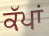
ਕੱਪਾਂ